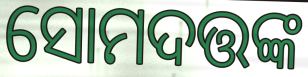
ସୋମଦତ୍ତଙ୍କ